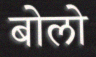
बोलो